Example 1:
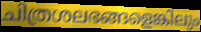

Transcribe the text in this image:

ചിത്രശലഭങ്ങളെങ്കിലും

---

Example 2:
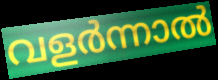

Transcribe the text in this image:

വളർന്നാൽ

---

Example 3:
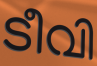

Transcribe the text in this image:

ടീവി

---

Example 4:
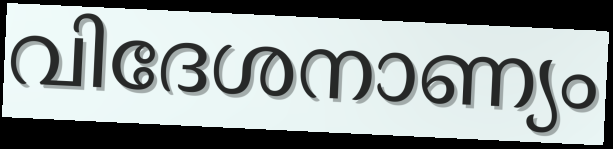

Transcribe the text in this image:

വിദേശനാണ്യം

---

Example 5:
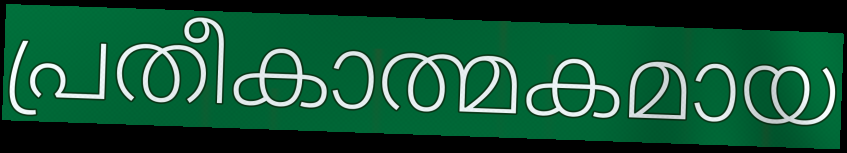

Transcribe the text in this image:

പ്രതീകാത്മകമായ